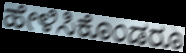
ಹೇಳಿಸಿಕೊಂಡರೂ